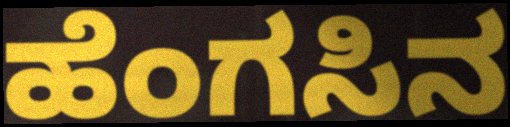
ಹೆಂಗಸಿನ